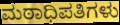
ಮಠಾಧಿಪತಿಗಳು